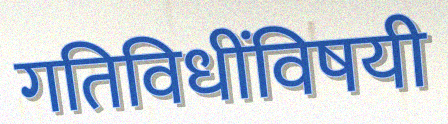
गतिविधींविषयी